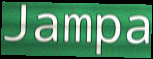
Jampa